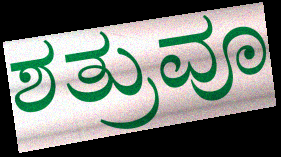
ಶತ್ರುವೂ